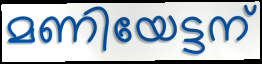
മണിയേട്ടന്